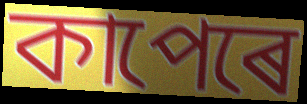
কাপেৰে